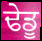
ਢੇਡੂ